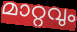
മാറ്റവും